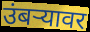
उंबर्‍यावर